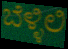
ಬೆಳ್ಳಿಲಿ